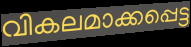
വികലമാക്കപ്പെട്ട